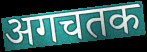
अगचतक